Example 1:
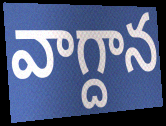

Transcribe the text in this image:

వాగ్దాన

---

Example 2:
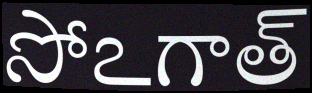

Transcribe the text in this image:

సోఽగాత్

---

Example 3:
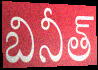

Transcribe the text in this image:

బినీత్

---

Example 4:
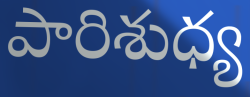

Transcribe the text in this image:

పారిశుధ్య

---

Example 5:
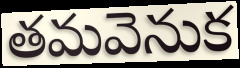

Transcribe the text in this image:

తమవెనుక